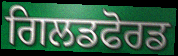
ਗਿਲਡਫੋਰਡ